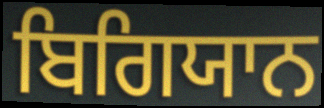
ਬਿਗਿਯਾਨ